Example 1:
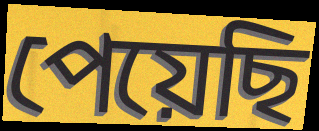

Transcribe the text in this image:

পেয়েছি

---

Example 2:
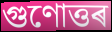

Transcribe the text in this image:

গুণোত্তৰ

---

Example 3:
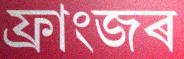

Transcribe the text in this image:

ফ্ৰাংজৰ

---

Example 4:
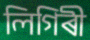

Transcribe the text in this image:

লিগিৰী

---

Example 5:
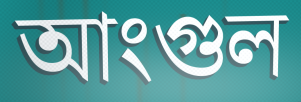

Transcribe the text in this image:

আংগুল